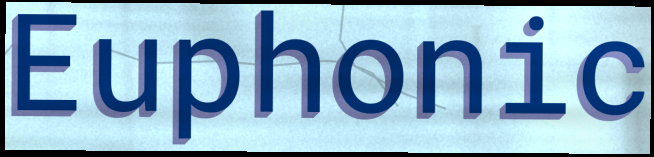
Euphonic